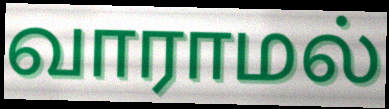
வாராமல்